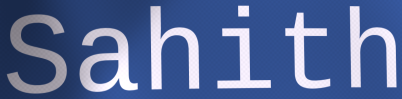
Sahith